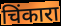
चिंकारा